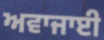
ਅਵਾਜਾਈ